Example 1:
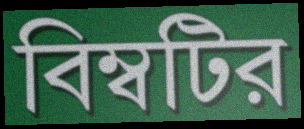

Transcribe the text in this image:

বিম্বটির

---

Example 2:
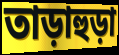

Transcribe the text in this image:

তাড়াহুড়া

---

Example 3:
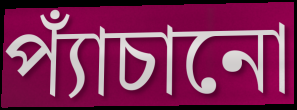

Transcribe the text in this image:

প্যাঁচানো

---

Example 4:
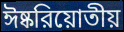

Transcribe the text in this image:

ঈষ্করিয়োতীয়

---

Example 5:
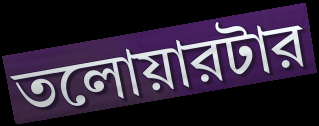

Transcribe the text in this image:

তলোয়ারটার